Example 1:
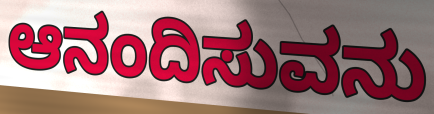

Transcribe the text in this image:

ಆನಂದಿಸುವನು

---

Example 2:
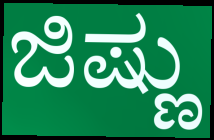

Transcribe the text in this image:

ಜಿಷ್ಣು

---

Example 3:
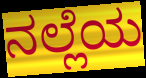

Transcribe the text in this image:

ನಲ್ಲೆಯ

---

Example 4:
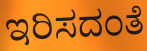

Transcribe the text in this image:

ಇರಿಸದಂತೆ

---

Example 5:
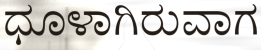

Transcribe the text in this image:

ಧೂಳಾಗಿರುವಾಗ